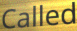
Called